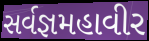
સર્વજ્ઞમહાવીર